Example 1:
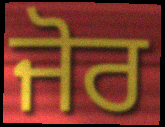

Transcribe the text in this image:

ਜੋਰ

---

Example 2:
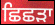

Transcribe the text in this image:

ਛਿਛੜਾ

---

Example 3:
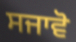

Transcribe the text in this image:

ਸਜਾਵੋ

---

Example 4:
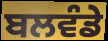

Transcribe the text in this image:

ਬਲਵੰਡੇ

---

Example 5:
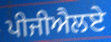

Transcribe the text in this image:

ਪੀਜੀਐਲਏ